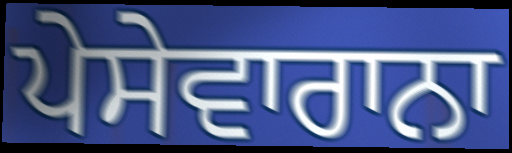
ਪੇਸੇਵਾਰਾਨਾ